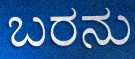
ಬರನು